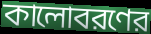
কালোবরণের